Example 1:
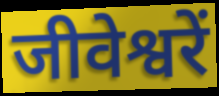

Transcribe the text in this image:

जीवेश्वरें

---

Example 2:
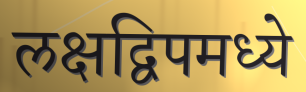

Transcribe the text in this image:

लक्षद्विपमध्ये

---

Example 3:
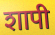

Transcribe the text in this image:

शापी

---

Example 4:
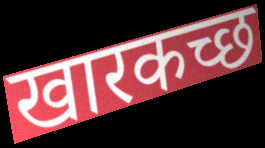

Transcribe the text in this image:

खारकच्छ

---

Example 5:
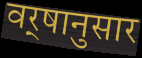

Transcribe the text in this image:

वर्षानुसार